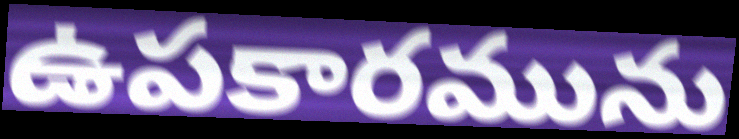
ఉపకారమును